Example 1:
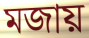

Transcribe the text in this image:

মজায়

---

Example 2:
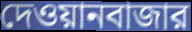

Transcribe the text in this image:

দেওয়ানবাজার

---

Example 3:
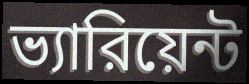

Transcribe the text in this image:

ভ্যারিয়েন্ট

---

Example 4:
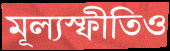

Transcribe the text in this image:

মূল্যস্ফীতিও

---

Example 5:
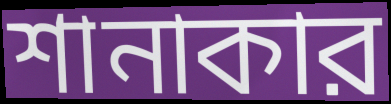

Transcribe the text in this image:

শানাকার